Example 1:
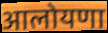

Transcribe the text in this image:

आलोयणा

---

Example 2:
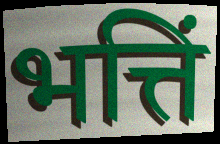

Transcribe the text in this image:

भत्तिं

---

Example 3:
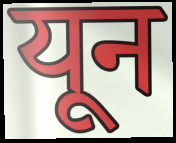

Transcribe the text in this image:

यून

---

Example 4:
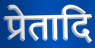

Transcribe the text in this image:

प्रेतादि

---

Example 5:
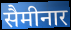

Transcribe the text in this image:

सैमीनार